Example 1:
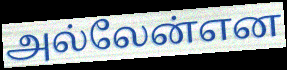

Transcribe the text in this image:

அல்லேன்என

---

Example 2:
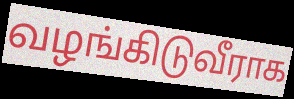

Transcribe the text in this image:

வழங்கிடுவீராக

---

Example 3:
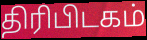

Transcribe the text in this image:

திரிபிடகம்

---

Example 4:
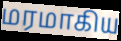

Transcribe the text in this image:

மரமாகிய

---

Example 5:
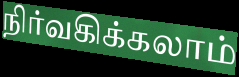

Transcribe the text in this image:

நிர்வகிக்கலாம்